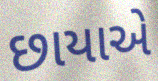
છાયાએ